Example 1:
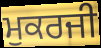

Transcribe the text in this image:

ਮੁਕਰਜੀ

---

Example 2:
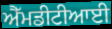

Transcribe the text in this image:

ਐੱਮਡੀਟੀਆਈ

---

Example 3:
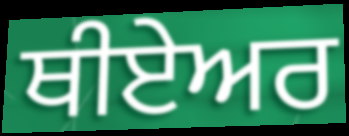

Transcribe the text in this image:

ਥੀਏਅਰ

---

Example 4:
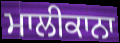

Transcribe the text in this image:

ਮਾਲੀਕਾਨਾ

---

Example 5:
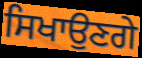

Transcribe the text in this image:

ਸਿਖਾਉਣਗੇ